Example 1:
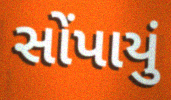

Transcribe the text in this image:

સોંપાયું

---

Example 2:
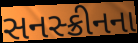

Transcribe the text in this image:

સનસ્ક્રીનના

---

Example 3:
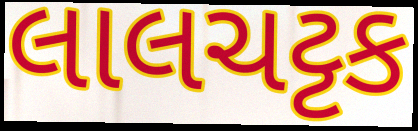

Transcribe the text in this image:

લાલચટ્ટક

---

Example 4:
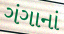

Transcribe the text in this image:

ગંગાનાં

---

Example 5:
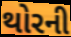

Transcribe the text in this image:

થોરની